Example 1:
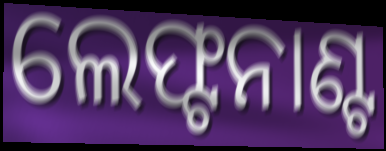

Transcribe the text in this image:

ଲେଫ୍ଟନାଣ୍ଟ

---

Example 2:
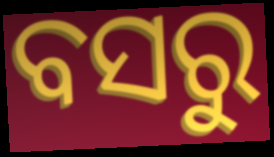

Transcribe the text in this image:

ବସରୁ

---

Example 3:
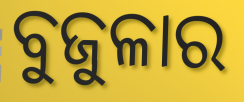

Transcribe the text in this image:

ବୁଜୁଳାର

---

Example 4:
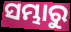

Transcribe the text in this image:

ସମ୍ଭାରୁ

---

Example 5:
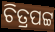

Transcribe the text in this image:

ଚିତ୍ରପଟ୍ଟ